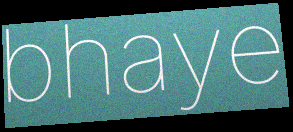
bhaye